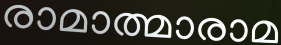
രാമാത്മാരാമ